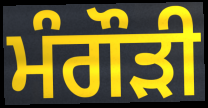
ਮੰਗੌੜੀ